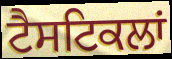
ਟੈਸਟਿਕਲਾਂ